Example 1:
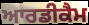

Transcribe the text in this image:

ਆਰਡੀਕੈਮ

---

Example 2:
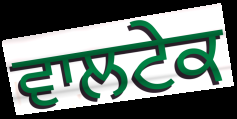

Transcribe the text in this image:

ਵਾਲਟੇਕ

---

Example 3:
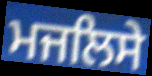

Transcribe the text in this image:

ਮਜਲਿਸੇ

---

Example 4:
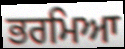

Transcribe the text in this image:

ਭਰਮਿਆ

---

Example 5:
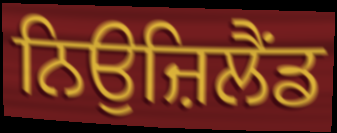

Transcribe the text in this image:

ਨਿਉਜ਼ਿਲੈਂਡ